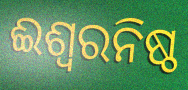
ଈଶ୍ୱରନିଷ୍ଠ